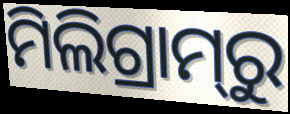
ମିଲିଗ୍ରାମ୍‌ରୁ